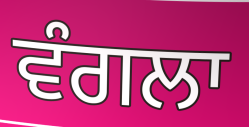
ਵੰਗਲਾ